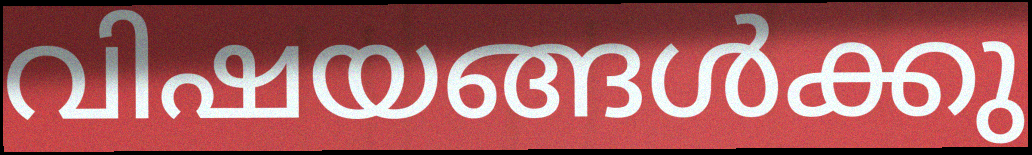
വിഷയങ്ങൾക്കു